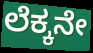
ಲೆಕ್ಕನೇ